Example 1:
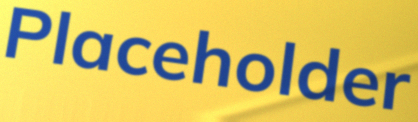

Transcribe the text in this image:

Placeholder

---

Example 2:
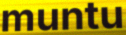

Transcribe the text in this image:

muntu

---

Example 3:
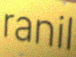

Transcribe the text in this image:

ranil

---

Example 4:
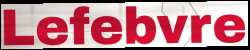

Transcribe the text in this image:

Lefebvre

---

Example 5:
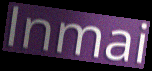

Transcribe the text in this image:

Inmai